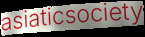
asiaticsociety